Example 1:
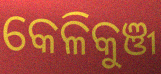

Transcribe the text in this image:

କେଳିକୁଞ୍ଜ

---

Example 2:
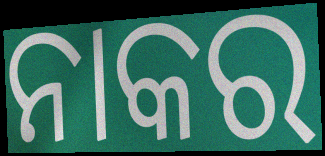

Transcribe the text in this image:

ନାକର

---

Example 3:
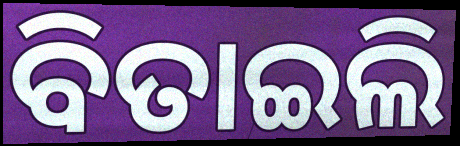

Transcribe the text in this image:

ବିତାଇଲି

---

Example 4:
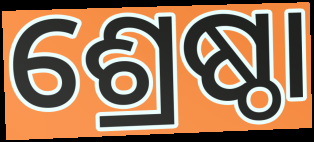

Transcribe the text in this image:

ଶ୍ରେଷ୍ଠା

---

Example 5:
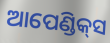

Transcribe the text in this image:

ଆପେଣ୍ଡିକ୍‌ସ